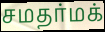
சமதர்மக்